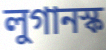
লুগানস্ক